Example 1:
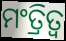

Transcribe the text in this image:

ମଂତ୍ରିତ୍ୱ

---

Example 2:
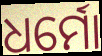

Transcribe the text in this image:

ଧର୍ମୋ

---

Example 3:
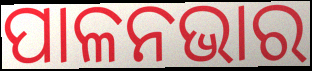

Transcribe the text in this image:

ପାଳନଭାର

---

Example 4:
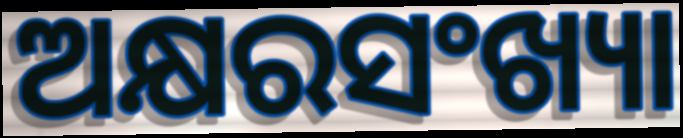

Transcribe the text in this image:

ଅକ୍ଷରସଂଖ୍ୟା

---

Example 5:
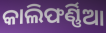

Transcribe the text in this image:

କାଲିଫର୍ଣ୍ଣିଆ